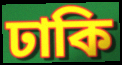
ঢাকি